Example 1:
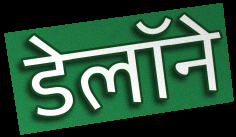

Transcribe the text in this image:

डेलॉने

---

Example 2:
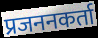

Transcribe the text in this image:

प्रजननकर्ता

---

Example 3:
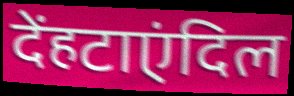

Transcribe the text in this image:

देंहटाएंदिल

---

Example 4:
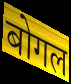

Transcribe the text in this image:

बोगल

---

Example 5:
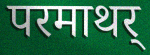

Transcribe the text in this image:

परमाथर्